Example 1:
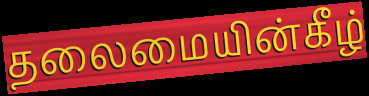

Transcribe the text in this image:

தலைமையின்கீழ்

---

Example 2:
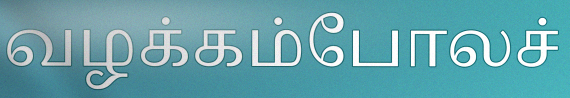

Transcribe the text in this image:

வழக்கம்போலச்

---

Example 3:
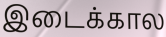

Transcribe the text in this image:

இடைக்கால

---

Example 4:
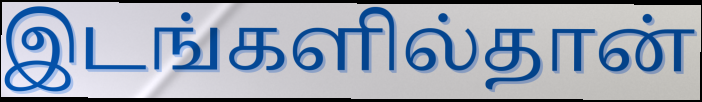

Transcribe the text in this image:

இடங்களில்தான்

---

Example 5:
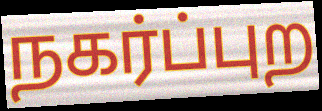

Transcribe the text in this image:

நகர்ப்புற